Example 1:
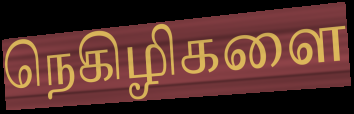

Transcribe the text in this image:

நெகிழிகளை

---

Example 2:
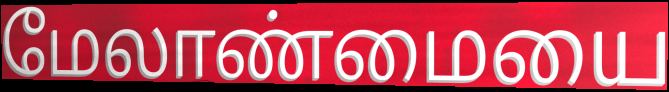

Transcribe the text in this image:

மேலாண்மையை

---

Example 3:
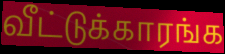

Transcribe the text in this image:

வீட்டுக்காரங்க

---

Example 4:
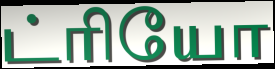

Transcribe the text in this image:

ட்ரியோ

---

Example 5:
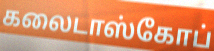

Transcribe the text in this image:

கலைடாஸ்கோப்